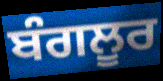
ਬੰਗਲੂਰ